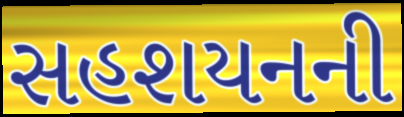
સહશયનની